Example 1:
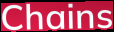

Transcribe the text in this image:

Chains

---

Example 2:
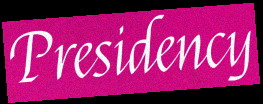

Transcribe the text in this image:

Presidency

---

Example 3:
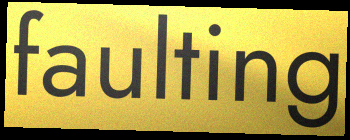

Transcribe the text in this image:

faulting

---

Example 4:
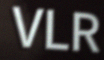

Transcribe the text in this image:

VLR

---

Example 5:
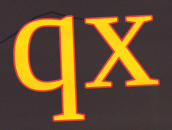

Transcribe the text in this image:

qx